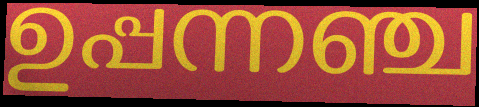
ഉപ്പന്നഞ്ച